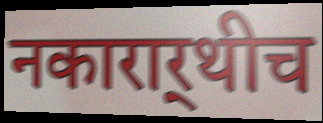
नकारार्थीच